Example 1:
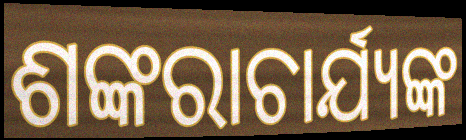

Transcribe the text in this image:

ଶଙ୍କରାଚାର୍ଯ୍ୟଙ୍କ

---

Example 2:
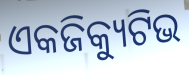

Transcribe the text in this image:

ଏକଜିକ୍ୟୁଟିଭ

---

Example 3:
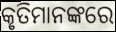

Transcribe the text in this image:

କୃତିମାନଙ୍କରେ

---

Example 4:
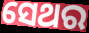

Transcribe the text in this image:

ସେଥର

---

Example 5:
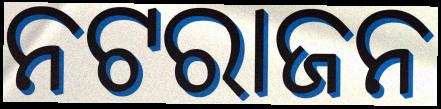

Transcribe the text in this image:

ନଟରାଜନ